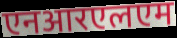
एनआरएलएम